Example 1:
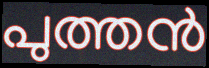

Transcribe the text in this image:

പുത്തൻ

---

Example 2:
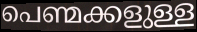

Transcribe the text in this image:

പെണ്മക്കളുള്ള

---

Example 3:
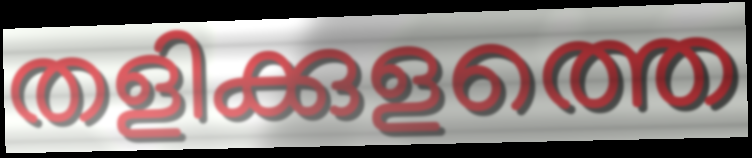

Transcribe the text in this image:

തളിക്കുളത്തെ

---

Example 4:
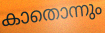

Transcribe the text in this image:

കാതൊന്നും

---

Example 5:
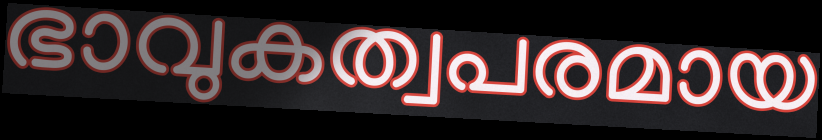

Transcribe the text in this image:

ഭാവുകത്വപരമായ